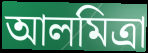
আলমিত্রা